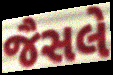
જૈસલે